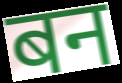
बन